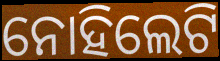
ନୋହିଲେଟି